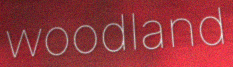
woodland